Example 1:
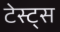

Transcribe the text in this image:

टेस्ट्स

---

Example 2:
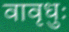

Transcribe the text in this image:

वावृधुः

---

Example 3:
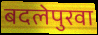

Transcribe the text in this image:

बदलेपुरवा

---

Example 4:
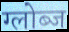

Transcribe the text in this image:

ग्लोब्ज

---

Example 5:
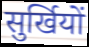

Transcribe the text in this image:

सुर्खियों